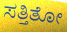
ಸತ್ತಿತೋ